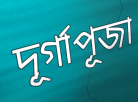
দূর্গাপূজা